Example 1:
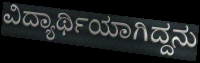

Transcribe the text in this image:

ವಿದ್ಯಾರ್ಥಿಯಾಗಿದ್ದನು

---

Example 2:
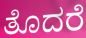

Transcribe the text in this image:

ತೊದರೆ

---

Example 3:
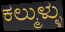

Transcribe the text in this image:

ಕಲ್ಮುಳ್ಳು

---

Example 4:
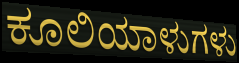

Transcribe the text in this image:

ಕೂಲಿಯಾಳುಗಳು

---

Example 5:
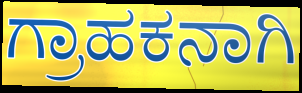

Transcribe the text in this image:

ಗ್ರಾಹಕನಾಗಿ